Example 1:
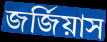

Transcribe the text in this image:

জর্জিয়াস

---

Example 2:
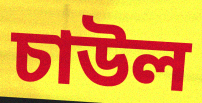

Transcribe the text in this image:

চাউল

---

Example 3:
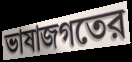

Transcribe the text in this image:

ভাষাজগতের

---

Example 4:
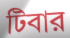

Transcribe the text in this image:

টিবার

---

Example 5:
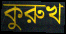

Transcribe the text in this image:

কুরুখ